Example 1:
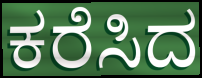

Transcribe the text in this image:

ಕರೆಸಿದ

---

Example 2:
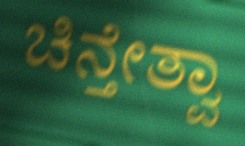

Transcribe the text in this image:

ಚಿನ್ತೇತ್ವಾ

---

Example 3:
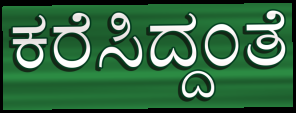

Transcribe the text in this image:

ಕರೆಸಿದ್ದಂತೆ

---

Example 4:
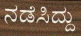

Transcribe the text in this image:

ನಡೆಸಿದ್ದು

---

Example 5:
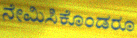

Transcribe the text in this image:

ನೇಮಿಸಿಕೊಂಡರೂ